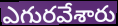
ఎగురవేశారు